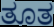
ತೂತ